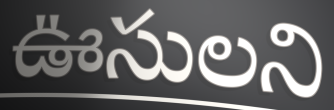
ఊసులని